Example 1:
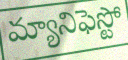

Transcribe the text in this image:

మ్యానిఫెస్టో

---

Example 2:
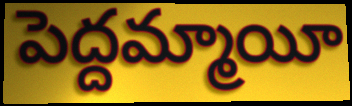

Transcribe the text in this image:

పెద్దమ్మాయీ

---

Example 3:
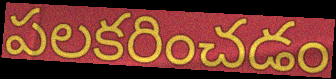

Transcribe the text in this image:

పలకరించడం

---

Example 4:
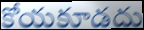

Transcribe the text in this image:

కోయకూడదు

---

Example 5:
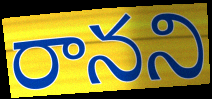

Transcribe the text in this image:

రానని